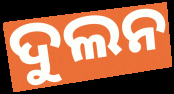
ଦୁଲନ